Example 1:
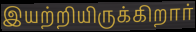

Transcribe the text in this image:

இயற்றியிருக்கிறார்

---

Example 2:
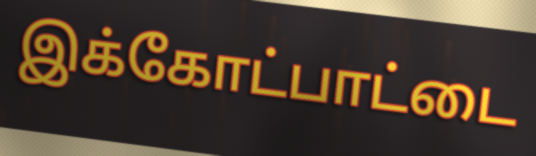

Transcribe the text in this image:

இக்கோட்பாட்டை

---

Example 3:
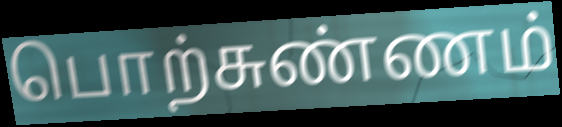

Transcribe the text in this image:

பொற்சுண்ணம்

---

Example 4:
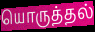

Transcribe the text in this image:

யொருத்தல்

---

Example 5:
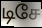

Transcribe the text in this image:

டிசே